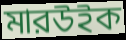
মারউইক